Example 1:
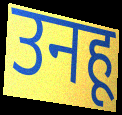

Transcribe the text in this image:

उनहू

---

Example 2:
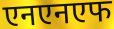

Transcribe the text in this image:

एनएनएफ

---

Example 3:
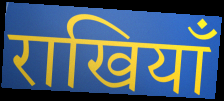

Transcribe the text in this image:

राखियाँ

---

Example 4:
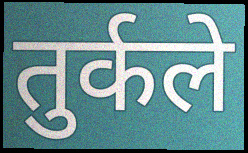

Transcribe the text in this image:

तुर्कले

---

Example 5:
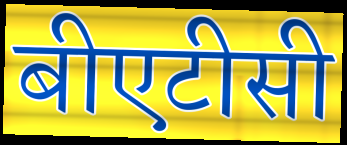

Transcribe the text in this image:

बीएटीसी